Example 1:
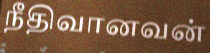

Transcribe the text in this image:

நீதிவானவன்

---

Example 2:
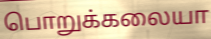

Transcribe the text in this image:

பொறுக்கலையா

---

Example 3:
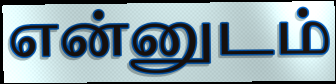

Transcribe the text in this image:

என்னுடம்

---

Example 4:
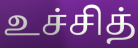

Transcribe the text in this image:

உச்சித்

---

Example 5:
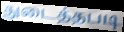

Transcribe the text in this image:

துடைத்தபடி